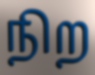
நிற